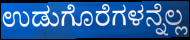
ಉಡುಗೊರೆಗಳನ್ನೆಲ್ಲ